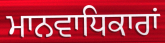
ਮਾਨਵਾਧਿਕਾਰਾਂ